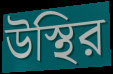
উস্থির